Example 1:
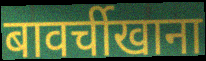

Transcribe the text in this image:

बावर्चीखाना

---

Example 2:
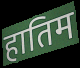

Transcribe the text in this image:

हातिम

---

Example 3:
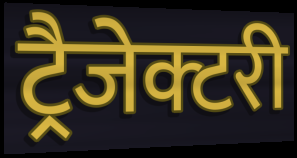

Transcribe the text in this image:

ट्रैजेक्‍टरी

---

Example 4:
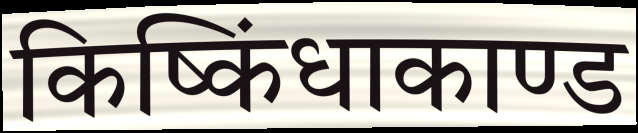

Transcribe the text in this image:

किष्किंधाकाण्ड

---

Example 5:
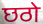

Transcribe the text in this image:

छठो